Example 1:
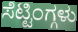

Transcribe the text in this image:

ಸೆಟ್ಟಿಂಗ್ಗಳು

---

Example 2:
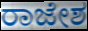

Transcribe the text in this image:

ರಾಜೇಶ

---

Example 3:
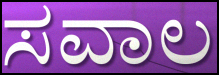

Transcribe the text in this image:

ಸವಾಲ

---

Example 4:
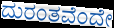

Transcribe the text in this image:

ದುರಂತವೆಂದೇ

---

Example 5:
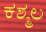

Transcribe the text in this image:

ಕಶ್ಮಲ